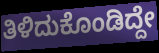
ತಿಳಿದುಕೊಂಡಿದ್ದೇ